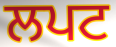
ਲਪਟ